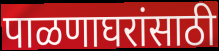
पाळणाघरांसाठी